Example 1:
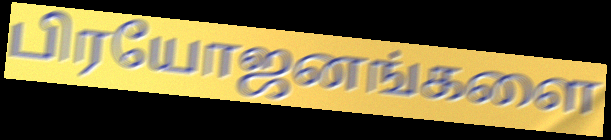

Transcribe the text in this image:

பிரயோஜனங்களை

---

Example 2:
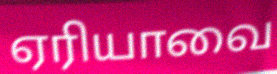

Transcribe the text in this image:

ஏரியாவை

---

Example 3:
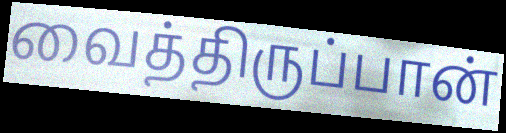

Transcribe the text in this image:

வைத்திருப்பான்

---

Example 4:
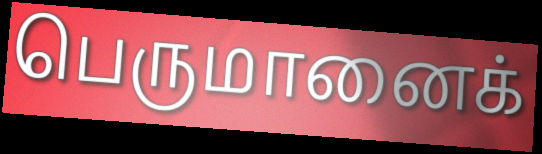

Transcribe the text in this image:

பெருமானைக்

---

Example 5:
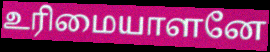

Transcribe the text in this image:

உரிமையாளனே